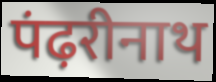
पंढ़रीनाथ